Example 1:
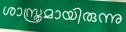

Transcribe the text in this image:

ശാസ്ത്രമായിരുന്നു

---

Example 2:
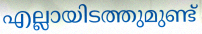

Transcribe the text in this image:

എല്ലായിടത്തുമുണ്ട്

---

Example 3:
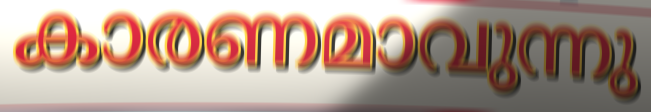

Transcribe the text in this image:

കാരണമാവുന്നു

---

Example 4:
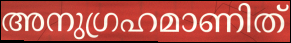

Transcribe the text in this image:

അനുഗ്രഹമാണിത്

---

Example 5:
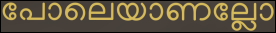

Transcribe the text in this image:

പോലെയാണല്ലോ